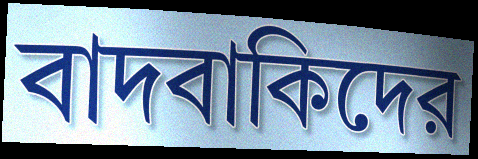
বাদবাকিদের